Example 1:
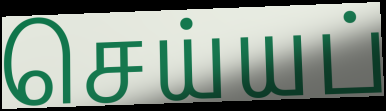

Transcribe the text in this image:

செய்யப்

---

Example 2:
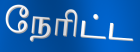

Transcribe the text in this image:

நேரிட்ட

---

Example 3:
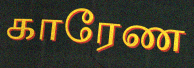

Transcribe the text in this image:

காரேண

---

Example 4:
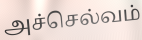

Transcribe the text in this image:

அச்செல்வம்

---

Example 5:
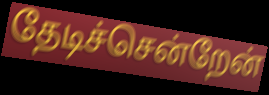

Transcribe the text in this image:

தேடிச்சென்றேன்